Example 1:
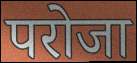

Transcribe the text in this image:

परोजा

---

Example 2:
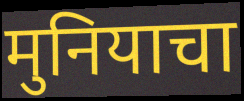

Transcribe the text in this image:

मुनियाचा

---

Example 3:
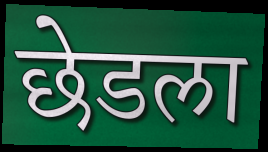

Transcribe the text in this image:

छेडला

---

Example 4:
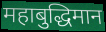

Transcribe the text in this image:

महाबुद्धिमान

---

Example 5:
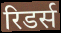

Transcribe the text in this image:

रिडर्स